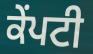
ਕੇਂਪਟੀ